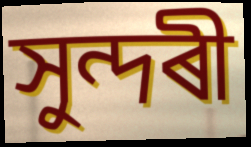
সুন্দৰী